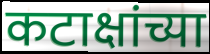
कटाक्षांच्या